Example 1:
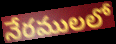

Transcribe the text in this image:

నేరములలో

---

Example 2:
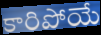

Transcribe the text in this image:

కారిపోయే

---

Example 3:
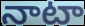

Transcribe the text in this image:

నాటా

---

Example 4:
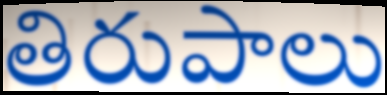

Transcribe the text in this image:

తిరుపాలు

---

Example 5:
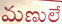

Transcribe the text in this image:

మణులే